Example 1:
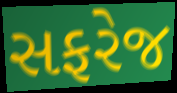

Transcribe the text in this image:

સફરેજ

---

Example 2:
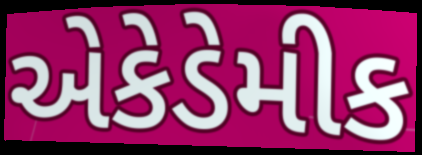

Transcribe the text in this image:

એકેડેમીક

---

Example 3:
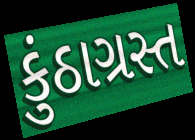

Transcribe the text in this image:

કુંઠાગ્રસ્ત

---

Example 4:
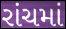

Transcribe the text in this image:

રાંચમાં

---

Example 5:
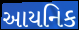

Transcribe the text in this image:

આયનિક